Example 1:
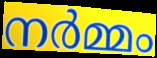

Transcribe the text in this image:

നർമ്മം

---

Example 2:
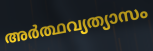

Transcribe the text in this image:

അർത്ഥവ്യത്യാസം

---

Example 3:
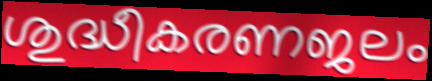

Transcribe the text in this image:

ശുദ്ധീകരണജലം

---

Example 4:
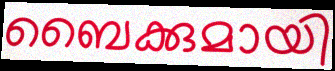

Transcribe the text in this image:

ബൈക്കുമായി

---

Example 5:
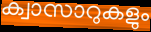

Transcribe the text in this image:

ക്വാസാറുകളും